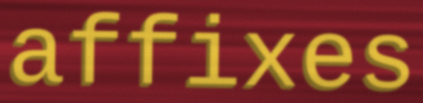
affixes